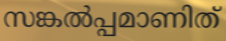
സങ്കൽപ്പമാണിത്